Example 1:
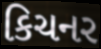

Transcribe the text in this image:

કિચનર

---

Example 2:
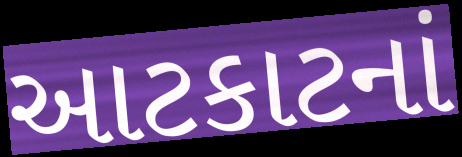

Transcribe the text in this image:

આટકાટનાં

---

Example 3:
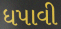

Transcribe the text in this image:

ધપાવી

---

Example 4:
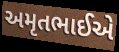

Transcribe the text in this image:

અમૃતભાઈએ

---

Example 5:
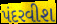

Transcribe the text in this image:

પંદરવીશ